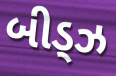
બીડ્ઝ